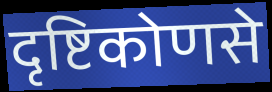
दृष्टिकोणसे